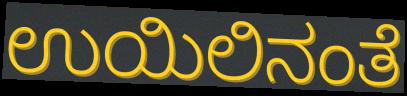
ಉಯಿಲಿನಂತೆ